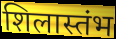
शिलास्तंभ